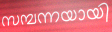
സമ്പന്നയായി